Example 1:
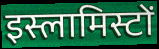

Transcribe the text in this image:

इस्लामिस्टों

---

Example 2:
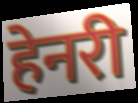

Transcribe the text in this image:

हेनरी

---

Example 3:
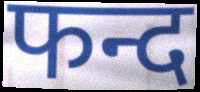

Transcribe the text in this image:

फन्द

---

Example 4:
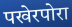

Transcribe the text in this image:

पखेरपोरा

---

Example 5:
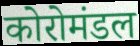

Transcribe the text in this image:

कोरोमंडल